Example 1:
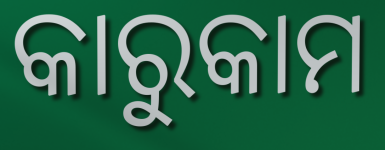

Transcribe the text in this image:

କାରୁକାମ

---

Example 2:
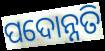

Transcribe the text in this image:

ପଦୋନ୍ନତି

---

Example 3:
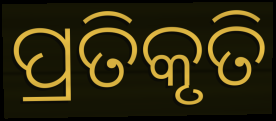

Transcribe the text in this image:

ପ୍ରତିକୃତି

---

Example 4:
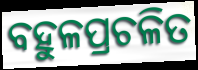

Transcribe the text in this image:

ବହୁଳପ୍ରଚଳିତ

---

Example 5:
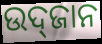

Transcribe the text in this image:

ଉଦ୍‌ଜାନ